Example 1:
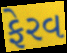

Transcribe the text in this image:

ફેરવ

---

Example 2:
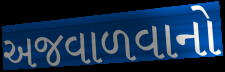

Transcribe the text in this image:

અજવાળવાનો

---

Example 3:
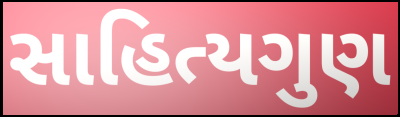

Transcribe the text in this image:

સાહિત્યગુણ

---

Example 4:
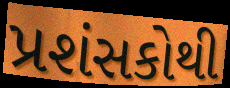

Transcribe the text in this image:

પ્રશંસકોથી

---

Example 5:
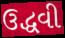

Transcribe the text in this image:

ઉદ્ધવી